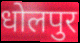
धोलपुर